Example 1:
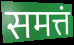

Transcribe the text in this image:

समत्तं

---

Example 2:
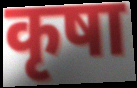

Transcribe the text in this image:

कृषा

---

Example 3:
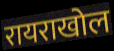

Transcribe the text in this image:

रायराखोल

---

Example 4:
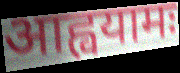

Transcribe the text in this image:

आह्वयामः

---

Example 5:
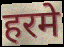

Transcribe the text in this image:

हरमे